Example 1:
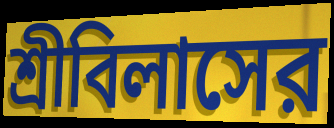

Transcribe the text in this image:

শ্রীবিলাসের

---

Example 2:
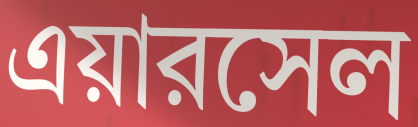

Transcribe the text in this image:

এয়ারসেল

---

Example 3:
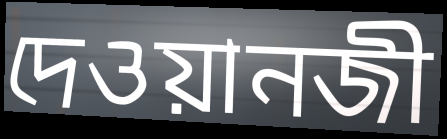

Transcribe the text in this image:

দেওয়ানজী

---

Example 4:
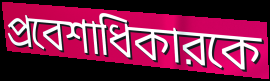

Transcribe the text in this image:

প্রবেশাধিকারকে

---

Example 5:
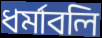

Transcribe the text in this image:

ধর্মাবলি